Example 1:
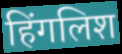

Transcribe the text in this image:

हिंगलिश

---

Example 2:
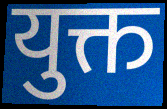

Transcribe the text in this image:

युक्त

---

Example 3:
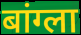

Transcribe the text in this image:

बांग्ला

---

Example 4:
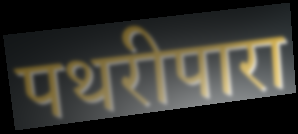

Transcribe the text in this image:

पथरीपारा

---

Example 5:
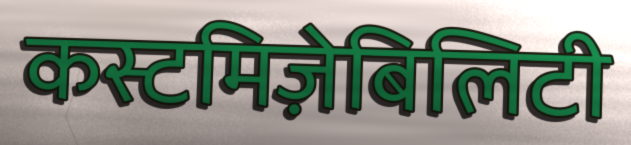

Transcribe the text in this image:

कस्टमिज़ेबिलिटी